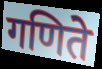
गणिते